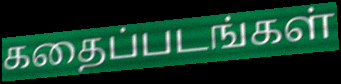
கதைப்படங்கள்